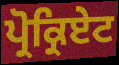
ਪ੍ਰੋਕ੍ਰਿਏਟ